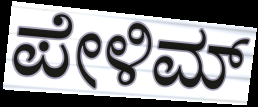
ಪೇಳಿಮ್